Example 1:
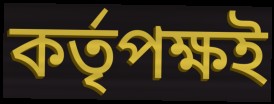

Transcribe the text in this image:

কৰ্তৃপক্ষই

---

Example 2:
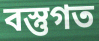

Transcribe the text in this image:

বস্তুগত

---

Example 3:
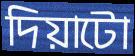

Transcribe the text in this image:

দিয়াটো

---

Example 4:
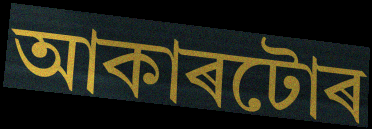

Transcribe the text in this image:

আকাৰটোৰ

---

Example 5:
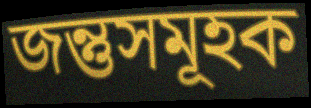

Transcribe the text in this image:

জন্তুসমূহক